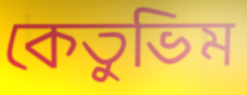
কেতুভিম